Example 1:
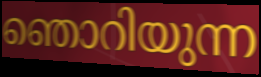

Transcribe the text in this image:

ഞൊറിയുന്ന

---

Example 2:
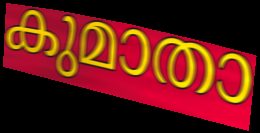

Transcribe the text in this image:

കുമാതാ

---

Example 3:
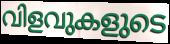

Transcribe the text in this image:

വിളവുകളുടെ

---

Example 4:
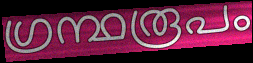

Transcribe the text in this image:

ഗ്രന്ഥരൂപം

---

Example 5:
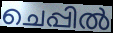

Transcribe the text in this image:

ചെപ്പിൽ